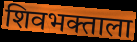
शिवभक्ताला